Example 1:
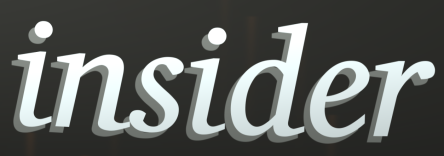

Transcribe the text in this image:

insider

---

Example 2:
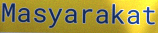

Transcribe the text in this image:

Masyarakat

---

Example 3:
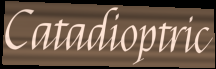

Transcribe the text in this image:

Catadioptric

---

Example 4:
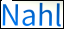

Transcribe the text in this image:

Nahl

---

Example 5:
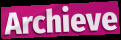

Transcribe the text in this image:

Archieve